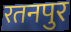
रतनपुर